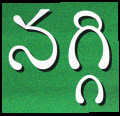
నగ్గి